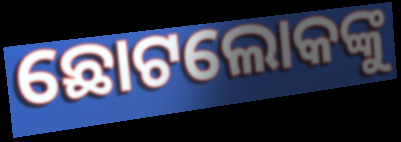
ଛୋଟଲୋକଙ୍କୁ